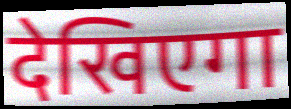
देखिएगा